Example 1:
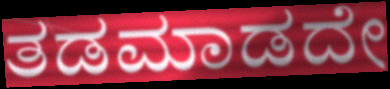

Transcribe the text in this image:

ತಡಮಾಡದೇ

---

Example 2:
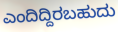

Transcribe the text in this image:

ಎಂದಿದ್ದಿರಬಹುದು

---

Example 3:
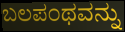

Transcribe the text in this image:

ಬಲಪಂಥವನ್ನು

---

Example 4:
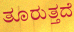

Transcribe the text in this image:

ತೂರುತ್ತದೆ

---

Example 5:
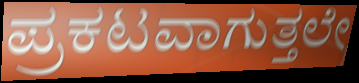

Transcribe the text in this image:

ಪ್ರಕಟವಾಗುತ್ತಲೇ